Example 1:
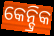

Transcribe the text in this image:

କେନ୍ଦ୍ରିକ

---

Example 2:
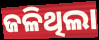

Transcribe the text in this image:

ଜଳିଥିଲା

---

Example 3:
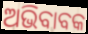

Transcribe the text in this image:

ଅଭିବାବକ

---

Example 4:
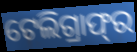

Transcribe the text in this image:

ଟେଲିଗ୍ରାଫ୍‌ର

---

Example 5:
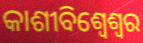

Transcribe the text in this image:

କାଶୀବିଶ୍ୱେଶ୍ୱର